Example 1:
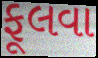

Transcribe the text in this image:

ફૂલવા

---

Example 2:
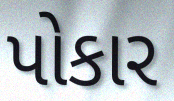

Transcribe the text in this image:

પોકાર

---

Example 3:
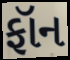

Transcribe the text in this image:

ફૉન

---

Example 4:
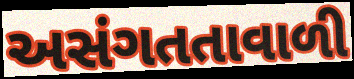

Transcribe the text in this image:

અસંગતતાવાળી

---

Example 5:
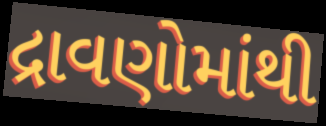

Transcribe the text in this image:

દ્રાવણોમાંથી